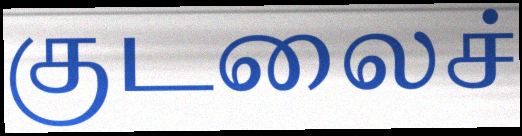
குடலைச்